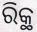
ରିକ୍ଥ